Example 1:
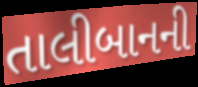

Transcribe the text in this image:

તાલીબાનની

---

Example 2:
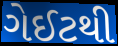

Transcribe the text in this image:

ગેઈટથી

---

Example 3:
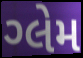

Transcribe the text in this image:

ગ્લેમ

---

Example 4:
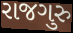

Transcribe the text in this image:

રાજગુરુ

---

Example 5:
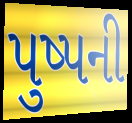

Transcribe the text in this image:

પુષ્પની